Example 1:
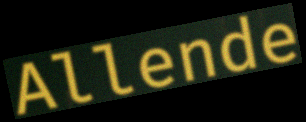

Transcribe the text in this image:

Allende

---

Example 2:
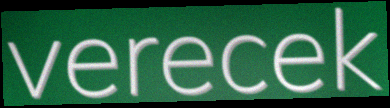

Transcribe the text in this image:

verecek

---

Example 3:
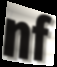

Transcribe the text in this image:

nf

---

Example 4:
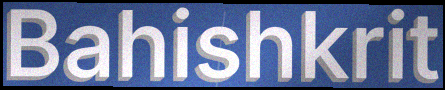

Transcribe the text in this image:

Bahishkrit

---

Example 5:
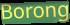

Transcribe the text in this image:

Borong